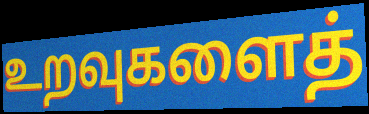
உறவுகளைத்